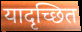
यादृच्छित